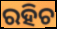
ରହିଚ